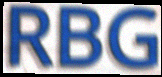
RBG